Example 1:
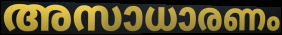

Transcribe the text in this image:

അസാധാരണം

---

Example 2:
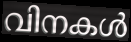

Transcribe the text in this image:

വിനകൾ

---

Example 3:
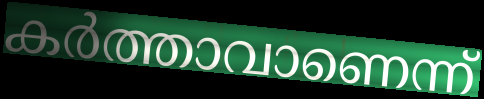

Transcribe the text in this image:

കർത്താവാണെന്ന്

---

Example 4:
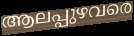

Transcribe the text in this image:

ആലപ്പുഴവരെ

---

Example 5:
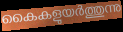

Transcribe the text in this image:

കൈകളുയർത്തുന്നു